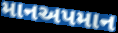
માનઅપમાન